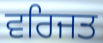
ਵਰਿਜਤ